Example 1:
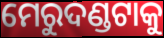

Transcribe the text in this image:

ମେରୁଦଣ୍ଡଟାକୁ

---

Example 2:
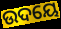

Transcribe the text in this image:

ଉଦୟେ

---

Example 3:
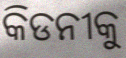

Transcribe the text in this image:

କିଡନୀକୁ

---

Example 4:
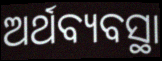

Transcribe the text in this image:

ଅର୍ଥବ୍ୟବସ୍ଥା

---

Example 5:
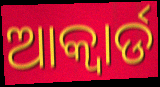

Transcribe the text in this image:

ଆକ୍ୱାର୍ଡ